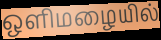
ஒளிமழையில்